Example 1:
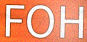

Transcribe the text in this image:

FOH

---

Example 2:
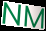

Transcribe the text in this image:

NM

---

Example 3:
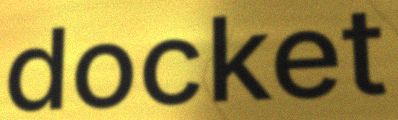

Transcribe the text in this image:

docket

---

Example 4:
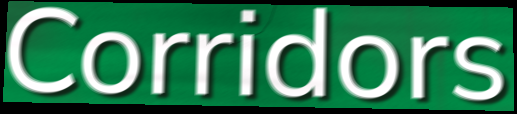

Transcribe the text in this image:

Corridors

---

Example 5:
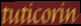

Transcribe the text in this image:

tuticorin